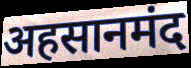
अहसानमंद